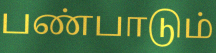
பண்பாடும்